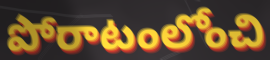
పోరాటంలోంచి